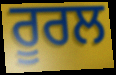
ਰੂਰਲ